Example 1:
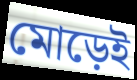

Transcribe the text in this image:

মোড়েই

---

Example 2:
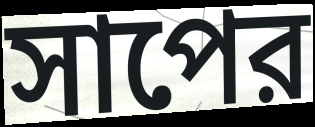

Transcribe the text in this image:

সাপের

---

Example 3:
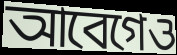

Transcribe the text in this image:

আবেগেও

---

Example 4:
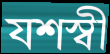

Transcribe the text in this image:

যশস্বী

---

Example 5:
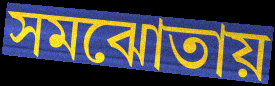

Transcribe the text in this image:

সমঝোতায়